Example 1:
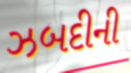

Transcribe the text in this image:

ઝબદીની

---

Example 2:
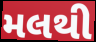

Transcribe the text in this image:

મલથી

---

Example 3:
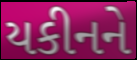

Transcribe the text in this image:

યકીનને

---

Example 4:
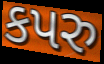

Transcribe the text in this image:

કપરુ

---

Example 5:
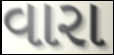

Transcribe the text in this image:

વારા